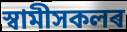
স্বামীসকলৰ